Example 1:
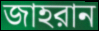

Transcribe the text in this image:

জাহরান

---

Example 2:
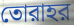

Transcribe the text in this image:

তোরাহর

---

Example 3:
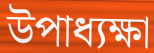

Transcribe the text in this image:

উপাধ্যক্ষা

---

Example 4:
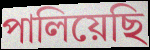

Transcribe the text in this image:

পালিয়েছি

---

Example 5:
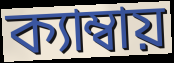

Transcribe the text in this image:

ক্যাম্বায়